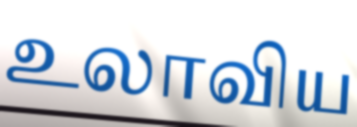
உலாவிய